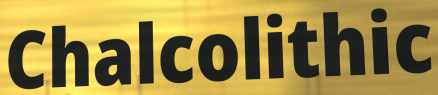
Chalcolithic